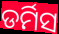
ଡର୍ମିସ